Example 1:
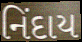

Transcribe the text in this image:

નિંદાય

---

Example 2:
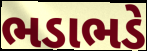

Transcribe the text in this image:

ભડાભડે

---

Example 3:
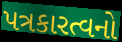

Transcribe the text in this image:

પત્રકારત્વનો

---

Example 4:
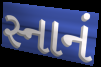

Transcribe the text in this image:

સ્નાનં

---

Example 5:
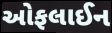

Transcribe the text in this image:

ઓફલાઈન